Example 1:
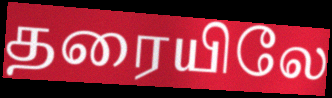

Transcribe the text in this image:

தரையிலே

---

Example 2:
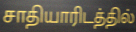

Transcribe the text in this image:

சாதியாரிடத்தில்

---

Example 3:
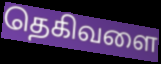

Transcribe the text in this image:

தெகிவளை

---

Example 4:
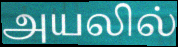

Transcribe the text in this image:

அயலில்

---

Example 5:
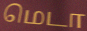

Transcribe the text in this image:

மெடா